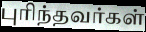
புரிந்தவர்கள்